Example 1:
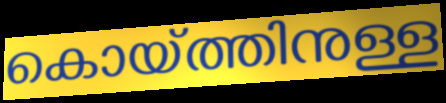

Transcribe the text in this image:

കൊയ്ത്തിനുള്ള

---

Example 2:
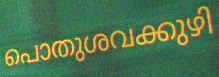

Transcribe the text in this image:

പൊതുശവക്കുഴി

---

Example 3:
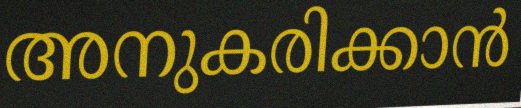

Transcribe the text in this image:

അനുകരിക്കാൻ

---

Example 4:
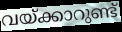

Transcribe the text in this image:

വയ്ക്കാറുണ്ട്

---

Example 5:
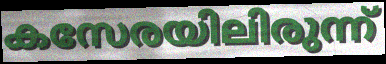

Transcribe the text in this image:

കസേരയിലിരുന്ന്